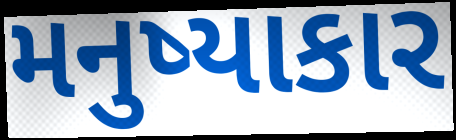
મનુષ્યાકાર